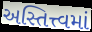
અસ્તિત્ત્વમાં